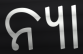
ନ୍ୟା